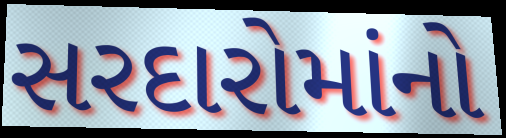
સરદારોમાંનો